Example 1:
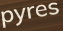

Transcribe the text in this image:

pyres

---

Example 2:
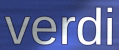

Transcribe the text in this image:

verdi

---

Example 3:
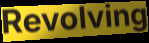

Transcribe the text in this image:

Revolving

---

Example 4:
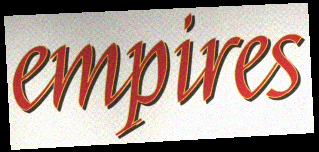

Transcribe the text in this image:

empires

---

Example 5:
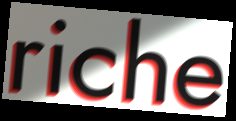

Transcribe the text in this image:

riche